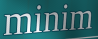
minim